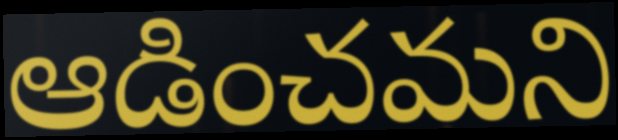
ఆడించమని